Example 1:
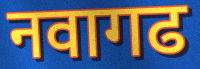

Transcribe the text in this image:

नवागढ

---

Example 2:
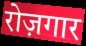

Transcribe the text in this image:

रोज़गार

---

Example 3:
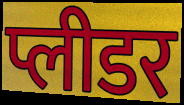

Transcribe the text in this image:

प्लीडर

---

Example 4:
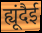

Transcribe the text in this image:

ह्यूंदैई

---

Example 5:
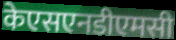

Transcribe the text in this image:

केएसएनडीएमसी